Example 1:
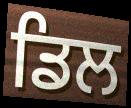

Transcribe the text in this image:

ਡਿਲ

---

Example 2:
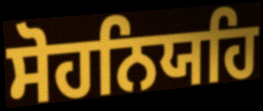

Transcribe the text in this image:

ਸੋਹਨਿਯਹਿ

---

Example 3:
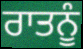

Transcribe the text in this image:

ਰਾਤਨੂੰ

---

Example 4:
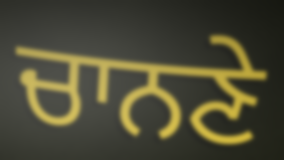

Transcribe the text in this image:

ਚਾਨਣੇ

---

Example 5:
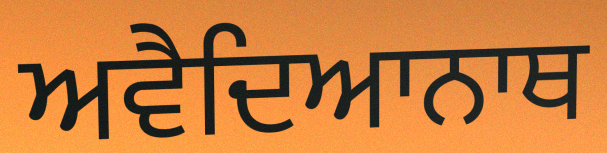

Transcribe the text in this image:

ਅਵੈਦਿਆਨਾਥ